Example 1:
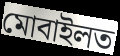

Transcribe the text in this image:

মোবাইলত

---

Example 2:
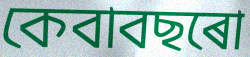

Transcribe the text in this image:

কেবাবছৰো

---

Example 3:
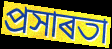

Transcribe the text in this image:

প্ৰসাৰতা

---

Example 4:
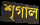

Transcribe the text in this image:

শৃগাল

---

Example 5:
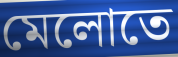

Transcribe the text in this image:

মেলোতে